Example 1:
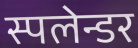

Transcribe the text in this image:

स्पलेन्डर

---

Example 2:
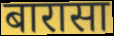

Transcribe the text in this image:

बारासा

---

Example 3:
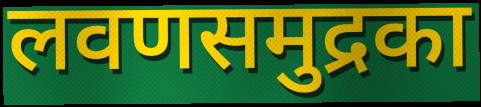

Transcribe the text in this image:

लवणसमुद्रका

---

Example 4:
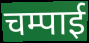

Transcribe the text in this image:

चम्‍पाई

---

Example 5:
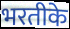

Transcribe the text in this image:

भरतीके